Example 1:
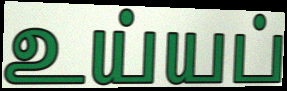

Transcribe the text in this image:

உய்யப்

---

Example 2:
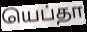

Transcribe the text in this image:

யெப்தா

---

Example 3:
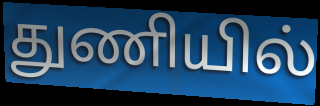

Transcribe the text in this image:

துணியில்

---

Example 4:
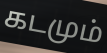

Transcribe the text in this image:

கடமும்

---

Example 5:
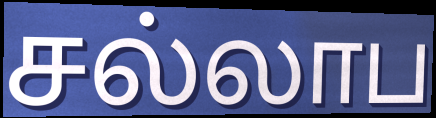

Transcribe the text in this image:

சல்லாப